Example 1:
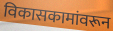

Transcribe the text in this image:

विकासकामांवरून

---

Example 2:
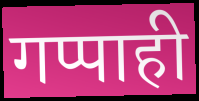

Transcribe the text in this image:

गप्पाही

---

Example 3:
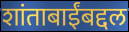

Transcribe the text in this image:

शांताबाईंबद्दल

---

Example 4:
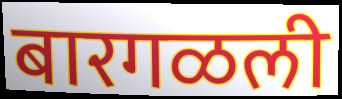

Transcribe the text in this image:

बारगळली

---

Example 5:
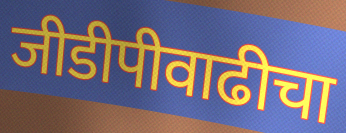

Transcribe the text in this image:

जीडीपीवाढीचा